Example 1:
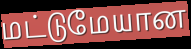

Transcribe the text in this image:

மட்டுமேயான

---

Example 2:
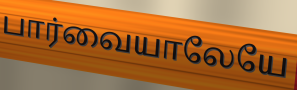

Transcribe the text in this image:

பார்வையாலேயே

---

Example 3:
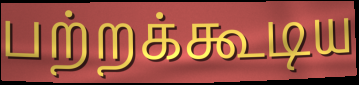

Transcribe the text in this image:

பற்றக்கூடிய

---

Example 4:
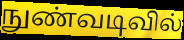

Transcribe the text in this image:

நுண்வடிவில்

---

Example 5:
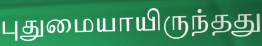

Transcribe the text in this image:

புதுமையாயிருந்தது